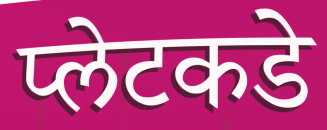
प्लेटकडे